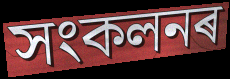
সংকলনৰ